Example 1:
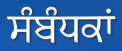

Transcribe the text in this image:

ਸੰਬੰਧਕਾਂ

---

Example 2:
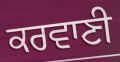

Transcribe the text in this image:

ਕਰਵਾਣੀ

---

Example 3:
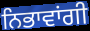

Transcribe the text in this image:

ਨਿਭਾਵਾਂਗੀ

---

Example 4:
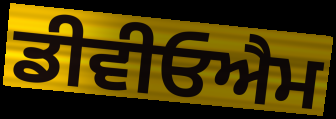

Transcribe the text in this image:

ਡੀਵੀਓਐਮ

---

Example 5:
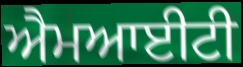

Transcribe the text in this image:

ਐਮਆਈਟੀ